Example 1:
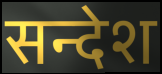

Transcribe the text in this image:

सन्देश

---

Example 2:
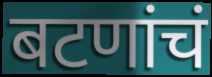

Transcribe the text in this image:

बटणांचं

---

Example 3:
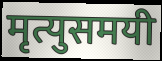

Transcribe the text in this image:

मृत्युसमयी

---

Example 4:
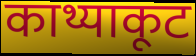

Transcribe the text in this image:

काथ्याकूट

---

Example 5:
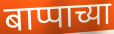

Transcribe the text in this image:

बाप्पाच्या